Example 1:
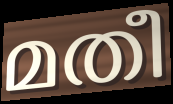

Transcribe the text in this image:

മതീ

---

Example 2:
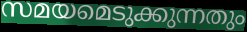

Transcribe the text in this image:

സമയമെടുക്കുന്നതും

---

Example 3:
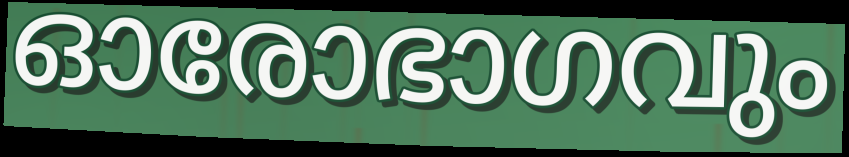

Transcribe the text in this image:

ഓരോഭാഗവും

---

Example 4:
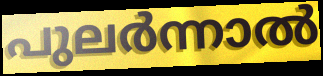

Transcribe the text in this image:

പുലർന്നാൽ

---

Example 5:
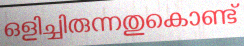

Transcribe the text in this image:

ഒളിച്ചിരുന്നതുകൊണ്ട്